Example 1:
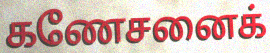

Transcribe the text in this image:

கணேசனைக்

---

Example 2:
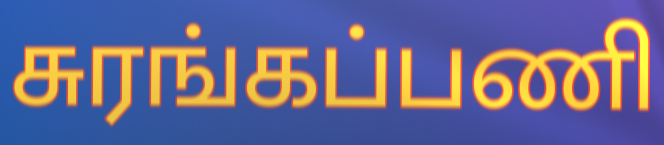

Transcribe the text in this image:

சுரங்கப்பணி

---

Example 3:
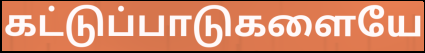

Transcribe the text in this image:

கட்டுப்பாடுகளையே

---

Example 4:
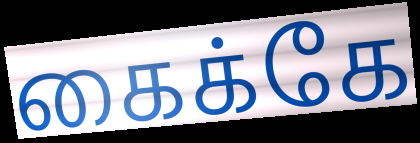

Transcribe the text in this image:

கைக்கே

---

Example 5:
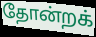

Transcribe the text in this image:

தோன்றக்